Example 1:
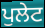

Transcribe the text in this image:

ਪੁਲੇਟ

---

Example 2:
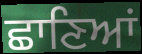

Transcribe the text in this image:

ਛਾਣਿਆਂ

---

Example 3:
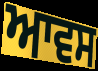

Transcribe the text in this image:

ਆਵਸ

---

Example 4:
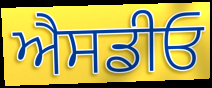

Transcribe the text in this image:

ਐਸਡੀਓ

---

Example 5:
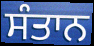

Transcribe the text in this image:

ਸੰਤਾਨ